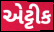
એટ્ટીક